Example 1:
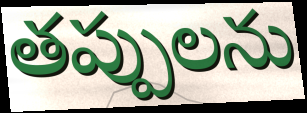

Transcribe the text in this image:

తప్పులను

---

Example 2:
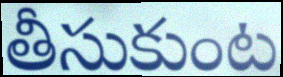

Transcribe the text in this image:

తీసుకుంట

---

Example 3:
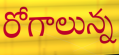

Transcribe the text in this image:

రోగాలున్న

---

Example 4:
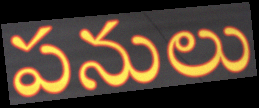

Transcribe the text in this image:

పనులు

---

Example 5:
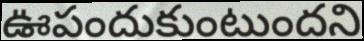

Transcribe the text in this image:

ఊపందుకుంటుందని